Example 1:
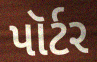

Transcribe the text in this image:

પૉર્ટર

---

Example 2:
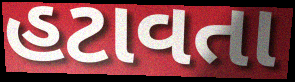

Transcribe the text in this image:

હટાવતા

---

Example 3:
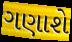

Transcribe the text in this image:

ગણાશે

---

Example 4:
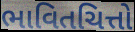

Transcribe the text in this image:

ભાવિતચિત્તો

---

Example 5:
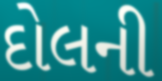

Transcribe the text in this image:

દોલની